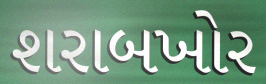
શરાબખોર